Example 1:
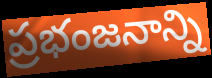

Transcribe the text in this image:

ప్రభంజనాన్ని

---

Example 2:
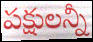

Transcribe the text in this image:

పక్షులన్నీ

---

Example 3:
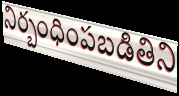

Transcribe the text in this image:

నిర్బంధింపబడితిని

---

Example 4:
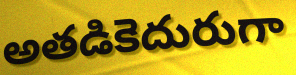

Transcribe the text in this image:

అతడికెదురుగా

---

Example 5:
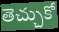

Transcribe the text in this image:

తెచ్చుకో